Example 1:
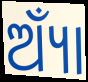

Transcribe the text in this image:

ଅ୍ୟାଁ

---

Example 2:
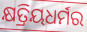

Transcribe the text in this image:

କ୍ଷତ୍ରିୟଧର୍ମର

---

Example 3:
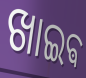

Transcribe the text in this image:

ଖାଇଵ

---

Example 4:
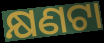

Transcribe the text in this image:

କ୍ଷଣଟା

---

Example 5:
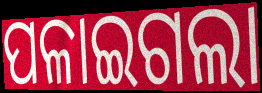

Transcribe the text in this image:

ପଳାଇଗଲା